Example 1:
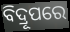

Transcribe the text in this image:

ବିଦ୍ରୂପରେ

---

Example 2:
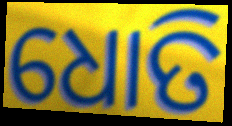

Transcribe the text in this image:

ଧୋତି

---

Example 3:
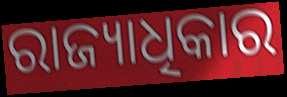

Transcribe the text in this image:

ରାଜ୍ୟାଧିକାର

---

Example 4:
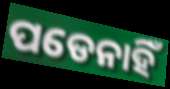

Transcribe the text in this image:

ପଡେନାହିଁ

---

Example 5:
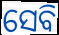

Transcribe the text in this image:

ସେବି